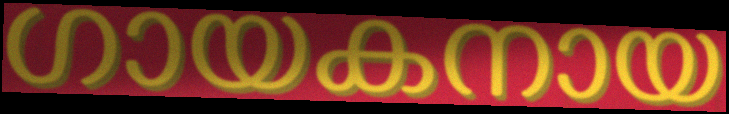
ഗായകനായ